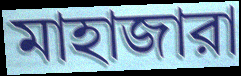
মাহাজারা